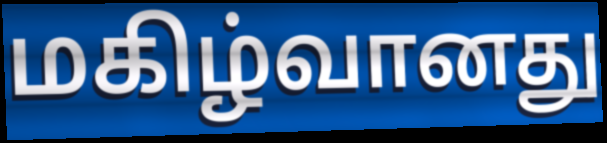
மகிழ்வானது